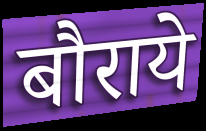
बौराये